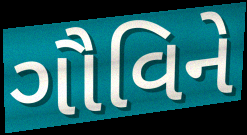
ગૌવિને